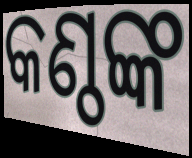
କଣ୍ଠଙ୍କ